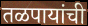
तळपायांची